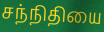
சந்நிதியை